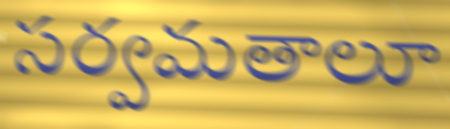
సర్వమతాలూ